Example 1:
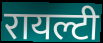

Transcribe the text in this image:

रायल्टी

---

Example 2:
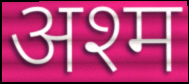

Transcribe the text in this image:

अश्म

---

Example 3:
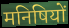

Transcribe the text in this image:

मनिषियों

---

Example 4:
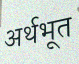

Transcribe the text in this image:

अर्थभूत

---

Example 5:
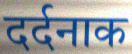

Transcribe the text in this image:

दर्दनाक